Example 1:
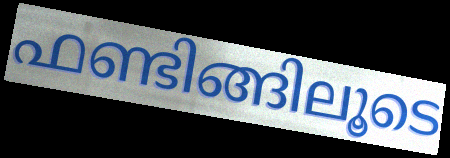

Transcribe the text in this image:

ഫണ്ടിങ്ങിലൂടെ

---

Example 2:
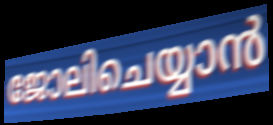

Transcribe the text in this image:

ജോലിചെയ്യാൻ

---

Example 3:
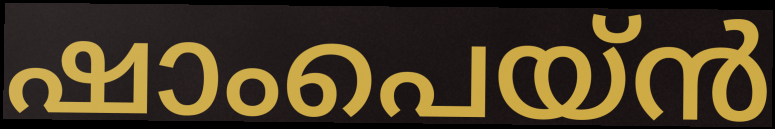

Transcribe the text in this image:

ഷാംപെയ്ൻ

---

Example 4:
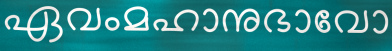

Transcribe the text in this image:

ഏവംമഹാനുഭാവോ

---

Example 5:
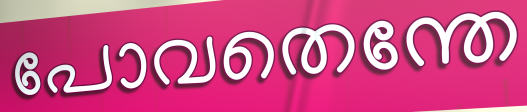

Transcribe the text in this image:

പോവതെന്തേ